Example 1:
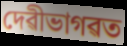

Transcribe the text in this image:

দেৱীভাগৱত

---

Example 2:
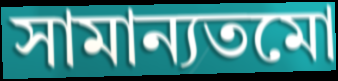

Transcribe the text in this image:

সামান্যতমো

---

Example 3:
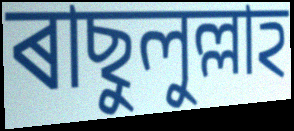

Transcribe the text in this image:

ৰাছুলুল্লাহ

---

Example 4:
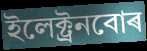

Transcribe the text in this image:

ইলেক্ট্ৰনবোৰ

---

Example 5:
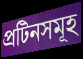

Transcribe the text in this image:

প্ৰটিনসমূহ